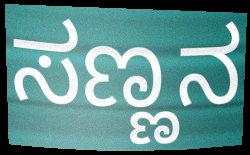
ಸಣ್ಣನ